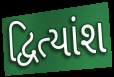
દ્વિત્યાંશ